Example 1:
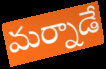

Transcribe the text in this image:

మర్నాడే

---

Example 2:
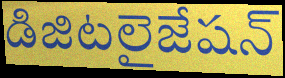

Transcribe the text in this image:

డిజిటలైజేషన్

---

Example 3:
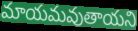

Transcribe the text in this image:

మాయమవుతాయని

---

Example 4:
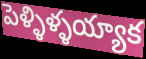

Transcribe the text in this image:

పెళ్ళిళ్ళయ్యాక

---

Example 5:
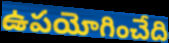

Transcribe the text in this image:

ఉపయోగించేది